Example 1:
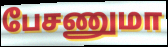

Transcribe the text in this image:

பேசணுமா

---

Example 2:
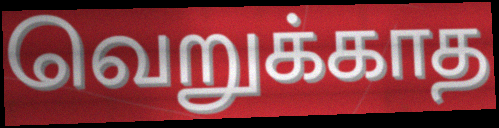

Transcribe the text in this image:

வெறுக்காத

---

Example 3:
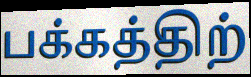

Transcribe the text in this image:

பக்கத்திற்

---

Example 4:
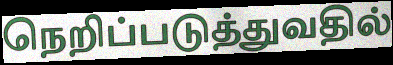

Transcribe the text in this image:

நெறிப்படுத்துவதில்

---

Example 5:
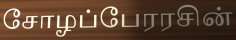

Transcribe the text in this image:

சோழப்பேரரசின்